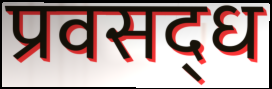
प्रवसद्ध